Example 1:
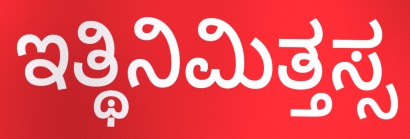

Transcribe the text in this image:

ಇತ್ಥಿನಿಮಿತ್ತಸ್ಸ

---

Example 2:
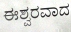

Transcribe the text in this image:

ಈಶ್ವರವಾದ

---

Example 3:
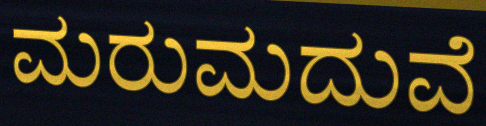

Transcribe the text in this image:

ಮರುಮದುವೆ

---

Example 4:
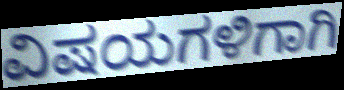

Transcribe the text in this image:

ವಿಷಯಗಳಿಗಾಗಿ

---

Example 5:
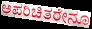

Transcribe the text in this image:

ಅಪರಿಚಿತರೇನೂ